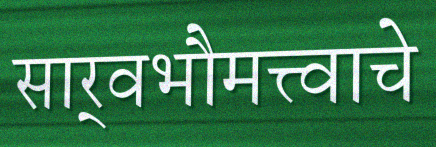
सार्वभौमत्त्वाचे